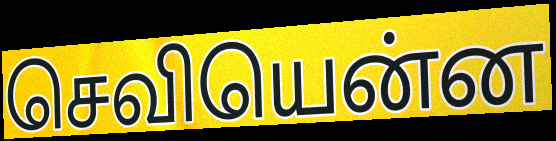
செவியென்ன